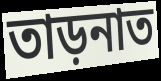
তাড়নাত